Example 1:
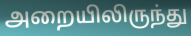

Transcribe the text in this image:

அறையிலிருந்து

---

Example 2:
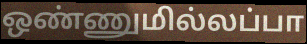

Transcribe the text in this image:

ஒண்ணுமில்லப்பா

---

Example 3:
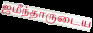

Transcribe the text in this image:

ஜமீந்தாருடைய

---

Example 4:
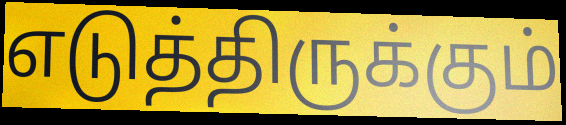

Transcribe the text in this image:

எடுத்திருக்கும்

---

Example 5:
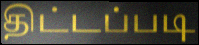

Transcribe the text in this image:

திட்டப்படி